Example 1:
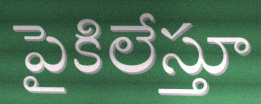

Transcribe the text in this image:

పైకిలేస్తూ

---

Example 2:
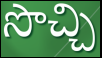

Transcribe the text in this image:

సొచ్చి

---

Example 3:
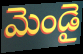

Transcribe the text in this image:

మెండై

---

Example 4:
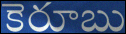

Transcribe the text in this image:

కెరూబు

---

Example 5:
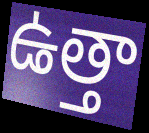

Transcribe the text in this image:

ఉత్తా